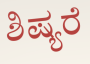
ಶಿಷ್ಯರೆ